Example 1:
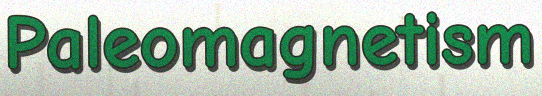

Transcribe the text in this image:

Paleomagnetism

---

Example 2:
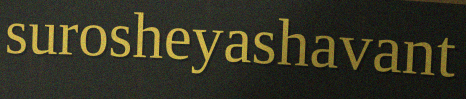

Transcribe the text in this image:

surosheyashavant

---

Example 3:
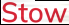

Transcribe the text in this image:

Stow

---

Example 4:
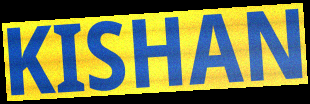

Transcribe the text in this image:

KISHAN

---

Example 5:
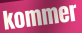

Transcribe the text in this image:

kommer